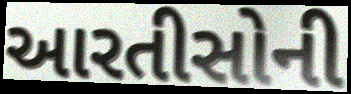
આરતીસોની